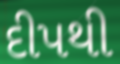
દીપથી